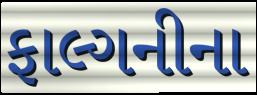
ફાલ્ગનીના